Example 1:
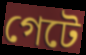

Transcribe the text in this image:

গেটে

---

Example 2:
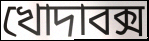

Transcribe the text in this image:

খোদাবক্স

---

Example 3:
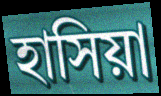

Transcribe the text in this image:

হাসিয়া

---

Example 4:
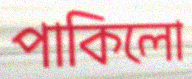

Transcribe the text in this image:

পাকিলো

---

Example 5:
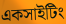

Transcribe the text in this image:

একসাইটিং